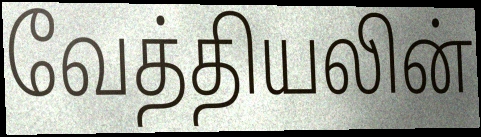
வேத்தியலின்